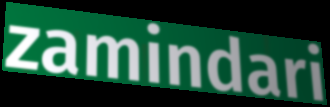
zamindari